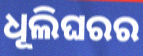
ଧୂଲିଘରର